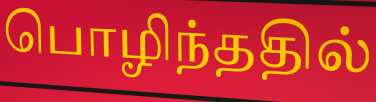
பொழிந்ததில்